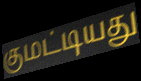
குமட்டியது